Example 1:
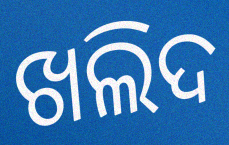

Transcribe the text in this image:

ଖଲିଦ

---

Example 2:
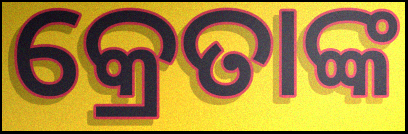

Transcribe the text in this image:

କ୍ରେତାଙ୍କ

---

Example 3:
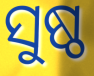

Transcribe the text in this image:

ସୁଷ୍ଠ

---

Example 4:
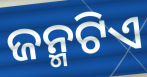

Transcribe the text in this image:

ଜନ୍ମଟିଏ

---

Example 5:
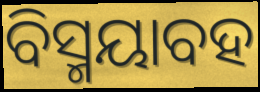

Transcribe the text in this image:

ବିସ୍ମୟାବହ